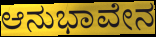
ಆನುಭಾವೇನ